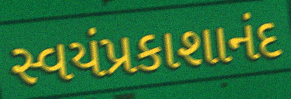
સ્વયંપ્રકાશાનંદ